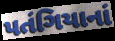
પતંગિયાનાં